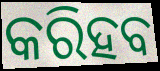
କରିହବ